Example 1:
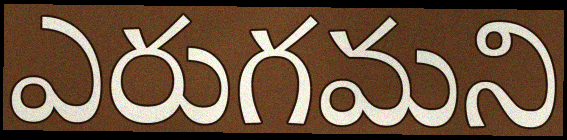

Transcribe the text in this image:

ఎరుగమని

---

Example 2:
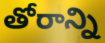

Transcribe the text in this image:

తోరాన్ని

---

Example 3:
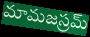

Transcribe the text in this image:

మామజస్రమ్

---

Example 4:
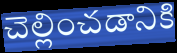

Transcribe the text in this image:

చెల్లించడానికి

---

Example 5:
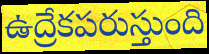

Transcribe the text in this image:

ఉద్రేకపరుస్తుంది